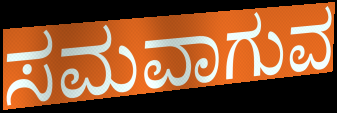
ಸಮವಾಗುವ